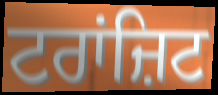
ਟਰਾਂਜ਼ਿਟ